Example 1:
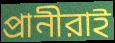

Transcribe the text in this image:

প্রানীরাই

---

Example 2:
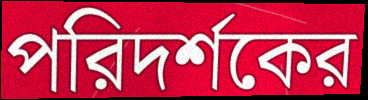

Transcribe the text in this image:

পরিদর্শকের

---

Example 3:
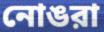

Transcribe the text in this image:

নোঙরা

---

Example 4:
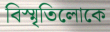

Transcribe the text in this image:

বিস্মৃতিলোকে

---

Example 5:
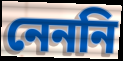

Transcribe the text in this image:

নেননি